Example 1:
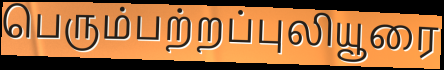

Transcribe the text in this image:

பெரும்பற்றப்புலியூரை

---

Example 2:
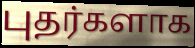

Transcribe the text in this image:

புதர்களாக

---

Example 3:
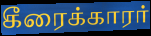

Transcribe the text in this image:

கீரைக்காரர்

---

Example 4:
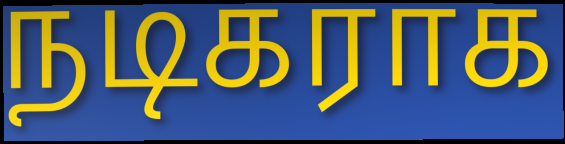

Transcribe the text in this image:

நடிகராக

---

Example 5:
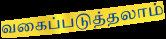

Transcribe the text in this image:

வகைப்படுத்தலாம்